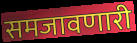
समजावणारी